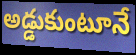
అడ్డుకుంటూనే